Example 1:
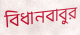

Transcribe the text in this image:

বিধানবাবুর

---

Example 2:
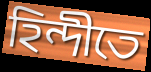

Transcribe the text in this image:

হিন্দীতে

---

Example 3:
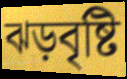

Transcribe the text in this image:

ঝড়বৃষ্টি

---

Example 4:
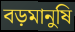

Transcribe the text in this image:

বড়মানুষি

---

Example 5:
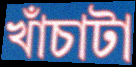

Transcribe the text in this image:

খাঁচাটা